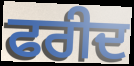
ਫਰੀਦ